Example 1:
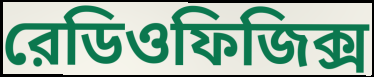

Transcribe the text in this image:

রেডিওফিজিক্স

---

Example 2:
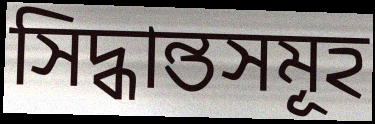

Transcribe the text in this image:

সিদ্ধান্তসমূহ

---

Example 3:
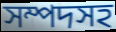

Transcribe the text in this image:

সম্পদসহ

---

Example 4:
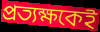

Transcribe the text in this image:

প্রত্যক্ষকেই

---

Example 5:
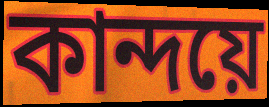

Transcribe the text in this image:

কান্দয়ে